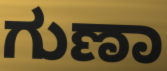
ಗುಣಾ